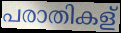
പരാതികള്